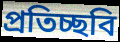
প্ৰতিচ্ছবি